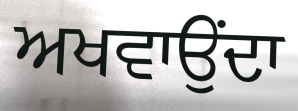
ਅਖਵਾਉਂਦਾ